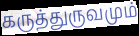
கருத்துருவமும்